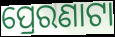
ପ୍ରେରଣାଟା